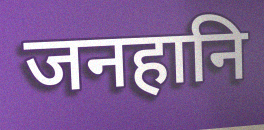
जनहानि